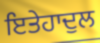
ਇਤੇਹਾਦੁਲ